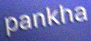
pankha